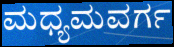
ಮಧ್ಯಮವರ್ಗ